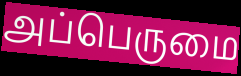
அப்பெருமை